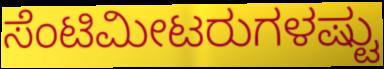
ಸೆಂಟಿಮೀಟರುಗಳಷ್ಟು